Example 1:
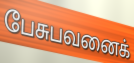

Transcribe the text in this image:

பேசுபவனைக்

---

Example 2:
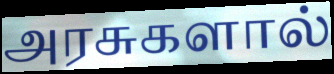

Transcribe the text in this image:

அரசுகளால்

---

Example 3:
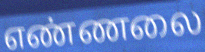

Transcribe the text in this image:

எண்ணலை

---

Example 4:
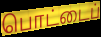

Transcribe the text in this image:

பொட்டைப்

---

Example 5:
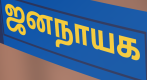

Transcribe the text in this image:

ஜனநாயக